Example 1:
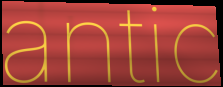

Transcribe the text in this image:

antic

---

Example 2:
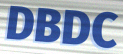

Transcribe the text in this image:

DBDC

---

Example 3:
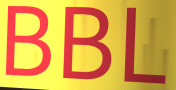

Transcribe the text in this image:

BBL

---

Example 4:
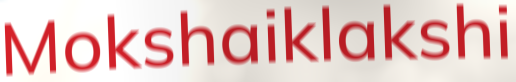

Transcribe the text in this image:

Mokshaiklakshi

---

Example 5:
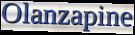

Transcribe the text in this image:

Olanzapine